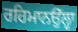
ਰਹਿਮਾਨਉੱਲ੍ਹਾ